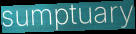
sumptuary